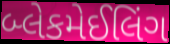
બ્લેકમેઈલિંગ